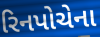
રિનપોચેના